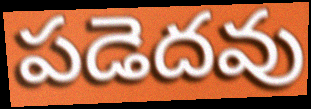
పడెదవు